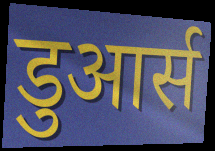
डुआर्स